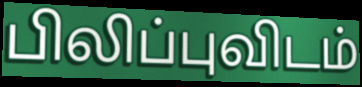
பிலிப்புவிடம்